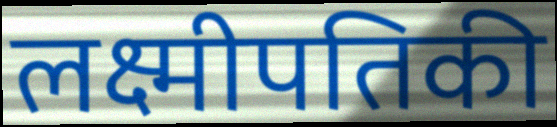
लक्ष्मीपतिकी